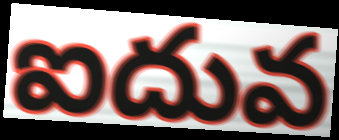
ఐదువ